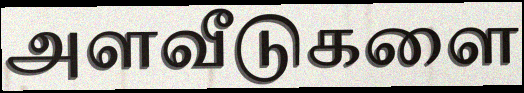
அளவீடுகளை